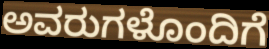
ಅವರುಗಳೊಂದಿಗೆ